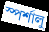
স্পর্শালু